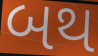
બથ